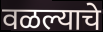
वळल्याचे